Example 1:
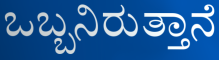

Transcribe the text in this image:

ಒಬ್ಬನಿರುತ್ತಾನೆ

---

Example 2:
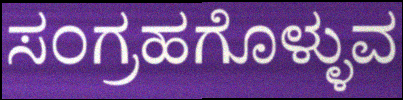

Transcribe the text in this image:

ಸಂಗ್ರಹಗೊಳ್ಳುವ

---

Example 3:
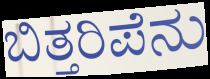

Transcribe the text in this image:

ಬಿತ್ತರಿಪೆನು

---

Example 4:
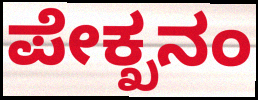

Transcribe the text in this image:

ಪೇಕ್ಖನಂ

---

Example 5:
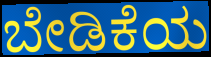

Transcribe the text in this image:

ಬೇಡಿಕೆಯ